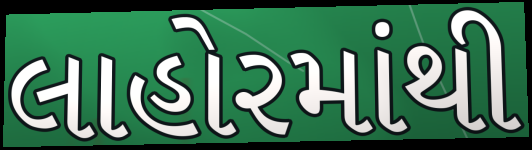
લાહોરમાંથી